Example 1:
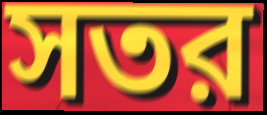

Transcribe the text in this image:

সতর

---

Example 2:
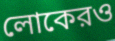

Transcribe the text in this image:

লোকেরও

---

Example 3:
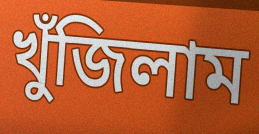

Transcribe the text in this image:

খুঁজিলাম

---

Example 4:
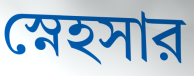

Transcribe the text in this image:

স্নেহসার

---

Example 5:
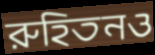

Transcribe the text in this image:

রুহিতনও